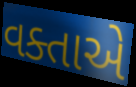
વક્તાએ